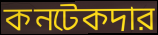
কনটেকদার